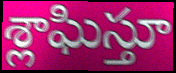
శ్లాఘిస్తూ